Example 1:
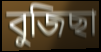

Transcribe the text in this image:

বুজিছা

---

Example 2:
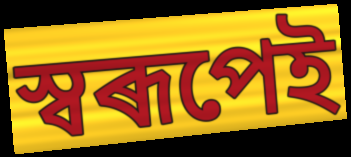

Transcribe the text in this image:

স্বৰূপেই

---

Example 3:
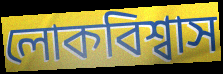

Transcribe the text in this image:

লোকবিশ্বাস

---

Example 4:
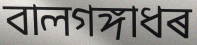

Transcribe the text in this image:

বালগঙ্গাধৰ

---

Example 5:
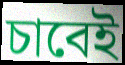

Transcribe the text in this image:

চাবেই